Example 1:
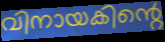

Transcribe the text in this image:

വിനായകിന്റെ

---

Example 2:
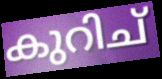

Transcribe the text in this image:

കുറിച്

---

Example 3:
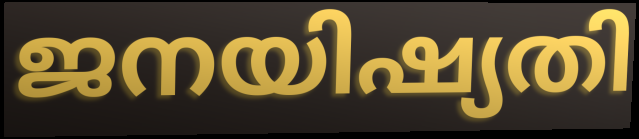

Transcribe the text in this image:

ജനയിഷ്യതി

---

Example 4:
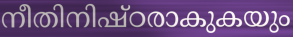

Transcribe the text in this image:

നീതിനിഷ്ഠരാകുകയും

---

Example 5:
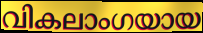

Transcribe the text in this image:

വികലാംഗയായ